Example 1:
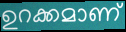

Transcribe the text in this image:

ഉറക്കമാണ്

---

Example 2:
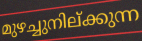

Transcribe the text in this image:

മുഴച്ചുനില്ക്കുന്ന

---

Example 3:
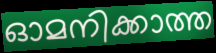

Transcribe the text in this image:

ഓമനിക്കാത്ത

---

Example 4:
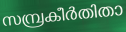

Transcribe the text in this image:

സമ്പ്രകീർതിതാ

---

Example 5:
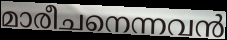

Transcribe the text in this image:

മാരീചനെന്നവൻ